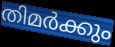
തിമർക്കും